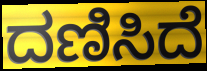
ದಣಿಸಿದೆ